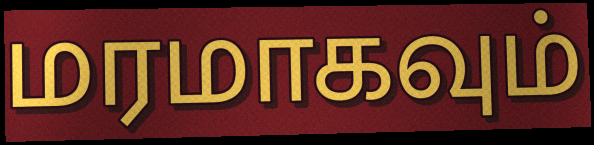
மரமாகவும்